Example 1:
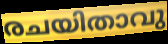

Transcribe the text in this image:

രചയിതാവു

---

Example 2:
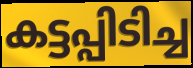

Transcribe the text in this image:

കട്ടപ്പിടിച്ച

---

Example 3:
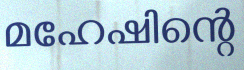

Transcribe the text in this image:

മഹേഷിന്റെ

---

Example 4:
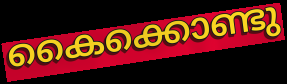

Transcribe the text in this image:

കൈക്കൊണ്ടു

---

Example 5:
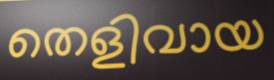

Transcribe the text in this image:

തെളിവായ